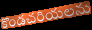
కొండచరియలను